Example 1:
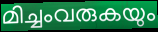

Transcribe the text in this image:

മിച്ചംവരുകയും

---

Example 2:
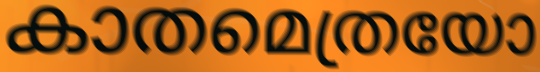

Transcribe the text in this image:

കാതമെത്രയോ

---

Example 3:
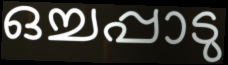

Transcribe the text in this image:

ഒച്ചപ്പാടു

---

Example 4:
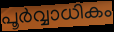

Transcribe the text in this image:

പൂർവ്വാധികം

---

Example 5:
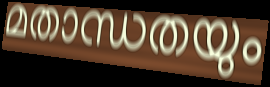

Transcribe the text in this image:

മതാന്ധതയും